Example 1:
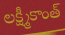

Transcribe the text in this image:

లక్ష్మీకాంత్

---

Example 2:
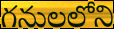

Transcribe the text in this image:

గనులలోని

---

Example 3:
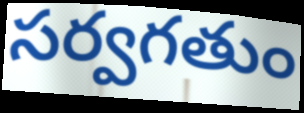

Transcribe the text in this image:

సర్వగతుం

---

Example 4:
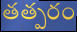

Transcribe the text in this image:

తత్పరం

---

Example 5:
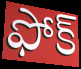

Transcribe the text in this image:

ఫోక్